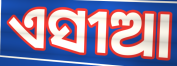
ଏସୀଆ